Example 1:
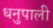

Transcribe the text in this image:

धनुपाली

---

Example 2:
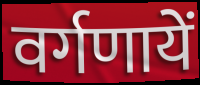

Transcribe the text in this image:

वर्गणायें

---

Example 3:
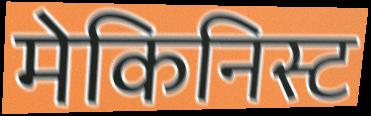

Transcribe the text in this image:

मेकिनिस्ट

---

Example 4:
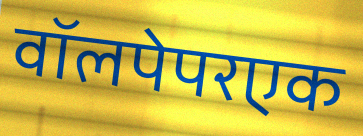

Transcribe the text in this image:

वॉलपेपरएक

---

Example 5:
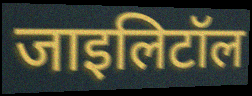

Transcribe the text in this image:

जाइलिटॉल